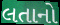
લતાનો